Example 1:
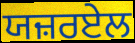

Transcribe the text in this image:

ਯਜ਼ਰਏਲ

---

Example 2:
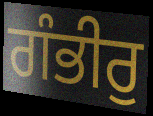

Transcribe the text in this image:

ਗੰਭੀਰੁ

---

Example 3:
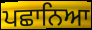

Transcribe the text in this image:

ਪਛਾਨਿਆ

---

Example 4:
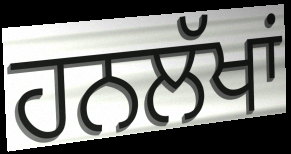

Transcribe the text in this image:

ਹਨਲੱਖਾਂ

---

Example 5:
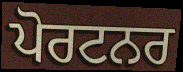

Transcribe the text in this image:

ਪੋਰਟਨਰ